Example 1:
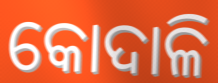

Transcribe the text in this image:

କୋଦାଳି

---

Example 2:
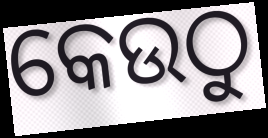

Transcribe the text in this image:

କେଉଠୁ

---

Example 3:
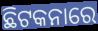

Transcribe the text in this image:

ଛିଟକନାରେ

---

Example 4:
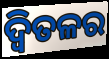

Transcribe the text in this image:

ଦ୍ୱିତଳର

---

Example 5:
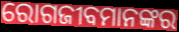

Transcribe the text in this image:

ରୋଗଜୀବମାନଙ୍କର